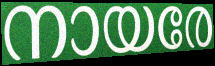
നായരേ